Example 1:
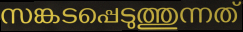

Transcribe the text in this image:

സങ്കടപ്പെടുത്തുന്നത്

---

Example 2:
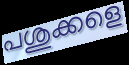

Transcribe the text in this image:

പശുക്കളെ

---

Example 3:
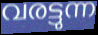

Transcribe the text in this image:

വരട്ടുന്ന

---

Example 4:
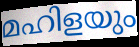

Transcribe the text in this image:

മഹിളയും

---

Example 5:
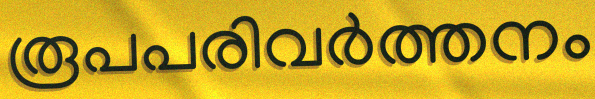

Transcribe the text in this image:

രൂപപരിവർത്തനം